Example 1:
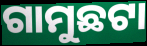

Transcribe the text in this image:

ଗାମୁଛଟା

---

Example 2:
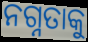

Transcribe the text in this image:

ନଗ୍ନତାକୁ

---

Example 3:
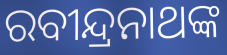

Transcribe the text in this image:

ରବୀନ୍ଦ୍ରନାଥଙ୍କ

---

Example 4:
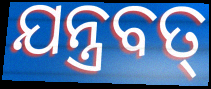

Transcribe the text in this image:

ଯନ୍ତ୍ରବତ୍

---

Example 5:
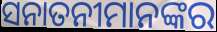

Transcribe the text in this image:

ସନାତନୀମାନଙ୍କର